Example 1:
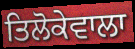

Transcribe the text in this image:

ਤਿਲੋਕੇਵਾਲਾ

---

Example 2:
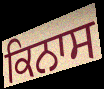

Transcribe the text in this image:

ਕਿਨਾਸ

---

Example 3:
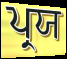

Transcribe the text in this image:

ਪ੍ਰਯ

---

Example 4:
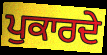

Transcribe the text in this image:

ਪੁਕਾਰਦੇ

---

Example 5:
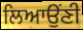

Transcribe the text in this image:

ਲਿਆਉਂਣੀ